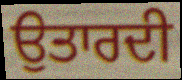
ਉਤਾਰਦੀ